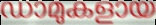
ഡാമുകളായ